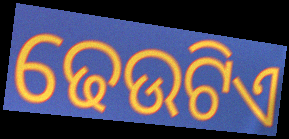
ଢେଉଟିଏ